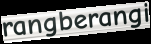
rangberangi